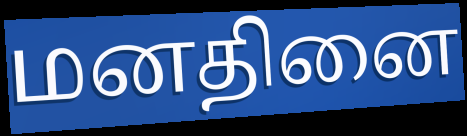
மனதினை